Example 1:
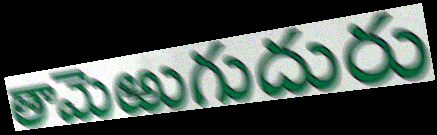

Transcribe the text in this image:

తామెఱుగుదురు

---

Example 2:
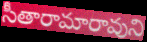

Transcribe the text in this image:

సీతారామారావుని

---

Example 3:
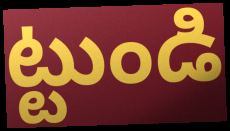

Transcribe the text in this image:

ట్టుండి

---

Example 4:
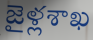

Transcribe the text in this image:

జైళ్లశాఖ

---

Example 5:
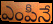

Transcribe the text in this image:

ఎంపీనే